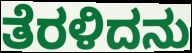
ತೆರಳಿದನು